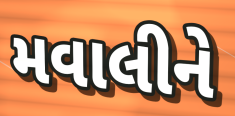
મવાલીને